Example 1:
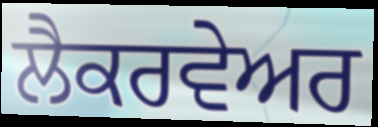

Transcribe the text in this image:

ਲੈਕਰਵੇਅਰ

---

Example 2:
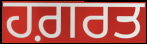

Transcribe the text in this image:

ਹਗ਼ਰਤ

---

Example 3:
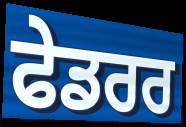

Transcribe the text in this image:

ਫੇਡਰਰ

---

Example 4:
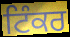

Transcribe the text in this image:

ਟਿੰਕਰ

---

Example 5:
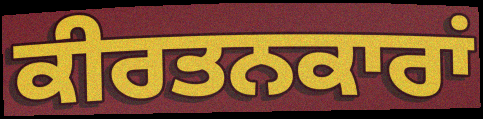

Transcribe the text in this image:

ਕੀਰਤਨਕਾਰਾਂ